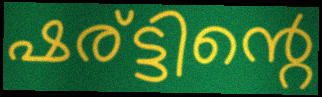
ഷര്ട്ടിന്റെ